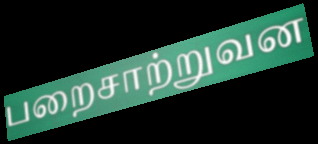
பறைசாற்றுவன